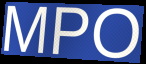
MPO